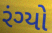
રંગ્યો